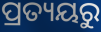
ପ୍ରତ୍ୟୟରୁ